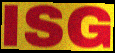
ISG